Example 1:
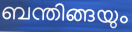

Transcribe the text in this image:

ബന്തിങ്ങയും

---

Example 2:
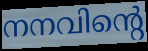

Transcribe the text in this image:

നനവിന്റെ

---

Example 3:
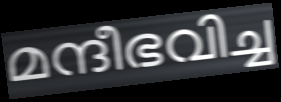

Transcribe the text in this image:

മന്ദീഭവിച്ച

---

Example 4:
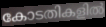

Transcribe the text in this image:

കോടതികളിൽ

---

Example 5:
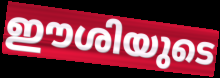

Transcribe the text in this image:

ഈശിയുടെ